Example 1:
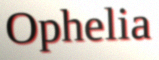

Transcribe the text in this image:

Ophelia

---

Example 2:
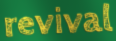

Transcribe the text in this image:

revival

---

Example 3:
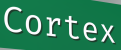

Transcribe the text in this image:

Cortex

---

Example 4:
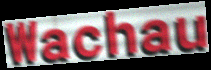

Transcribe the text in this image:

Wachau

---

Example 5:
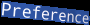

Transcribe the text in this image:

Preference